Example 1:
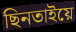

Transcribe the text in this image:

ছিনতাইয়ে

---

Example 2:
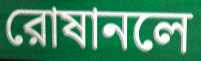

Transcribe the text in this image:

রোষানলে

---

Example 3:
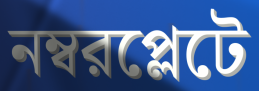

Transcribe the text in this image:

নম্বরপ্লেটে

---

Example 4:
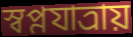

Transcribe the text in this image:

স্বপ্নযাত্রায়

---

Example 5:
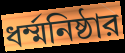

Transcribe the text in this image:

ধর্ম্মনিষ্ঠার